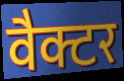
वैक्टर